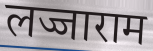
लज्जाराम